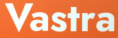
Vastra